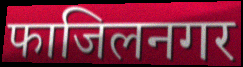
फाजिलनगर